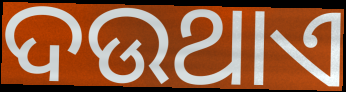
ଦଉଥାଏ